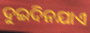
ଦୁଇଦିନଯାଏ